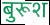
बुरूश